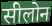
सीलोन